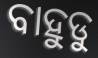
ବାହୁଡୁ